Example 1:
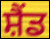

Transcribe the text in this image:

ਸ਼ੈਂਡ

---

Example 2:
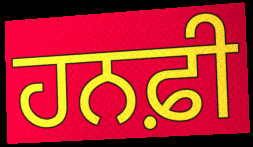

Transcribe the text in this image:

ਹਨਫ਼ੀ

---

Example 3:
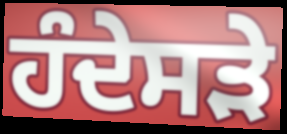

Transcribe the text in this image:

ਹੰਦੇਸੜੇ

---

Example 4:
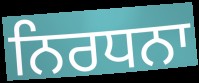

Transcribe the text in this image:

ਨਿਰਧਨਾ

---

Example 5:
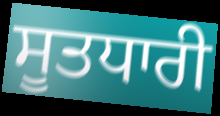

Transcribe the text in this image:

ਸੂਤਧਾਰੀ